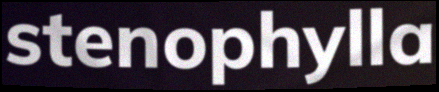
stenophylla